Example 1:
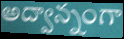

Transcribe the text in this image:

అద్వాన్నంగా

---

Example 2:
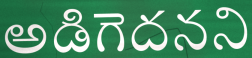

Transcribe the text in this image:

అడిగెదనని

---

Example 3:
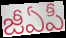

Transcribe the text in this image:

జీఏపీ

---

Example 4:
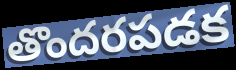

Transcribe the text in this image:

తొందరపడక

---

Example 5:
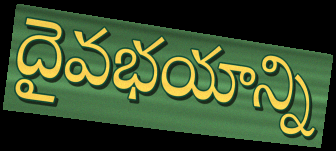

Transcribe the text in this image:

దైవభయాన్ని